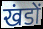
खंडों